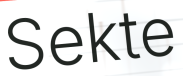
Sekte